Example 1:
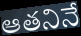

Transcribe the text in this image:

ఆతనినే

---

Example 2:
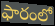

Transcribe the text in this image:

ఫారంలో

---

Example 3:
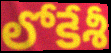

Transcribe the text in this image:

లోకేశీ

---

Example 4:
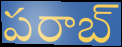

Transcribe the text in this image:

పరాబ్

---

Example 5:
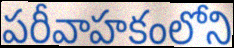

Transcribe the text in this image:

పరీవాహకంలోని